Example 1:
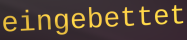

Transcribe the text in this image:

eingebettet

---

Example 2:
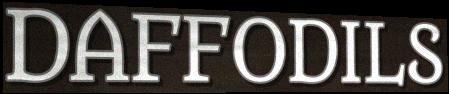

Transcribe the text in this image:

DAFFODILS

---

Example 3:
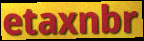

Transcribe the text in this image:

etaxnbr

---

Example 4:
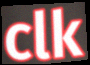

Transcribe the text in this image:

clk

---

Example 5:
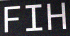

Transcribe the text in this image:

FIH